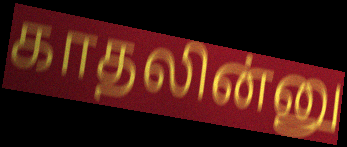
காதலின்னு